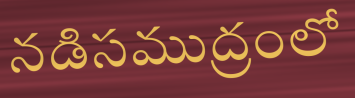
నడిసముద్రంలో